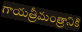
గాయత్రీమంత్రానికి